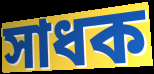
সাধক